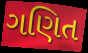
ગણિત